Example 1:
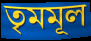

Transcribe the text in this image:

তৃমমূল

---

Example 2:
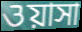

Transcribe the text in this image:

ওয়াসা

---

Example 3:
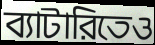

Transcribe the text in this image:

ব্যাটারিতেও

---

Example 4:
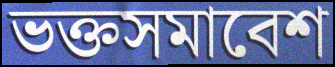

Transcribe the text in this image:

ভক্তসমাবেশ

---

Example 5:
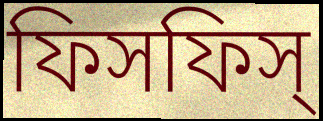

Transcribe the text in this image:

ফিসফিস্